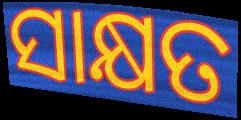
ସାକ୍ଷତ